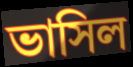
ভাসিল